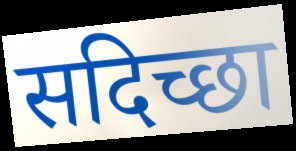
सदिच्छा